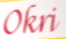
Okri